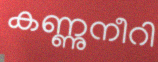
കണ്ണുനീറി